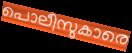
പൊലീസുകാരെ